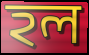
হল